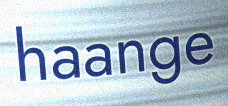
haange